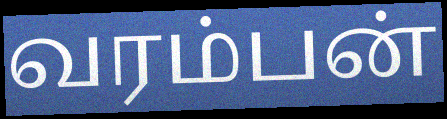
வரம்பன்